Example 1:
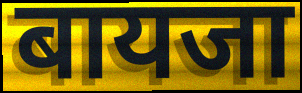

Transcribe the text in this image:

बायजा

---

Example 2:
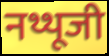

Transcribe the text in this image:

नथ्थूजी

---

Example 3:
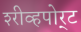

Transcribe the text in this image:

श्रीव्हपोर्ट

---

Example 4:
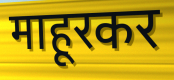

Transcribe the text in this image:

माहूरकर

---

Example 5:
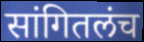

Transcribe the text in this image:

सांगितलंच